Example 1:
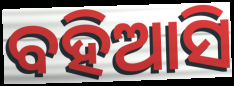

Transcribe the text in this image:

ବହିଆସି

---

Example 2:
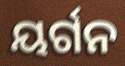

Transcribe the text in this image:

ୟର୍ଗନ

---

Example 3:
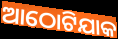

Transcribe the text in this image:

ଆଠୋଟିଯାକ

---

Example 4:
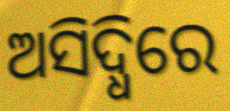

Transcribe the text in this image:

ଅସିଦ୍ଧିରେ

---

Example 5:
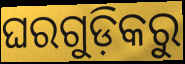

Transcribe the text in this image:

ଘରଗୁଡ଼ିକରୁ